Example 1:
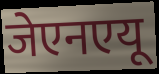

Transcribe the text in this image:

जेएनएयू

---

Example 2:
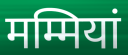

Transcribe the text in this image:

मम्मियां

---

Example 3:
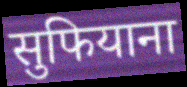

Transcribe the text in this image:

सुफियाना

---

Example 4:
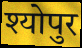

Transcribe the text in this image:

श्‍योपुर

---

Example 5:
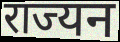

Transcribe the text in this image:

राज्यन